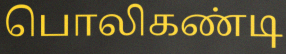
பொலிகண்டி